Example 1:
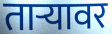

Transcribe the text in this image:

ताऱ्यावर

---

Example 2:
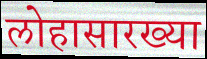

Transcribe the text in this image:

लोहासारख्या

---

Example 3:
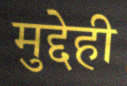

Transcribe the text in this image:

मुद्देही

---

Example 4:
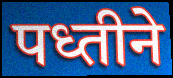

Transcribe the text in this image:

पध्तीने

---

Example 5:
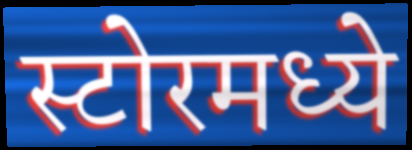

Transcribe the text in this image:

स्टोरमध्ये